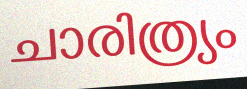
ചാരിത്യ്രം